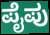
ಪೈಪು